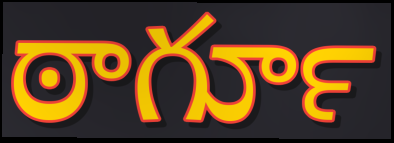
ఠాగూర్‍